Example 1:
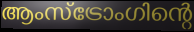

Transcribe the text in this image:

ആംസ്ട്രോംഗിന്റെ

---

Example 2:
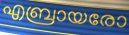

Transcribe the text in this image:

എബ്രായരോ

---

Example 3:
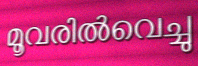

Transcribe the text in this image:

മൂവരിൽവെച്ചു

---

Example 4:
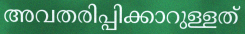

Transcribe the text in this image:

അവതരിപ്പിക്കാറുള്ളത്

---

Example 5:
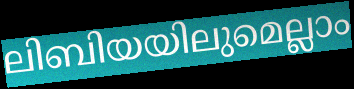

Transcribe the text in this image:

ലിബിയയിലുമെല്ലാം